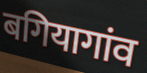
बगियागांव